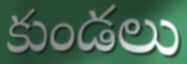
కుండలు